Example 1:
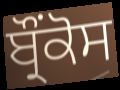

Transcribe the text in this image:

ਬ੍ਰੌਂਕੋਸ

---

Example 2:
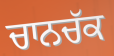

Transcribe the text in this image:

ਚਾਨਚੱਕ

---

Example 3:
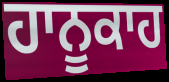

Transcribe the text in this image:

ਹਾਨੂਕਾਹ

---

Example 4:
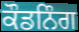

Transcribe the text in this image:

ਕੌਡਨਿੰਗ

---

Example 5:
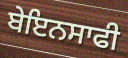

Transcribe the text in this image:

ਬੇਇਨਸਾਫੀ